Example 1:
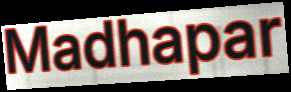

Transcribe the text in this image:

Madhapar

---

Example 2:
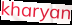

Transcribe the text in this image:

kharyan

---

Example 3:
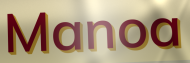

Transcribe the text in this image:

Manoa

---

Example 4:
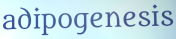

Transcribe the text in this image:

adipogenesis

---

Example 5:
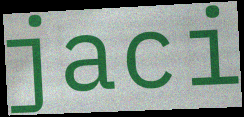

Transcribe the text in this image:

jaci